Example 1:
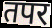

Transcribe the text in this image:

तपर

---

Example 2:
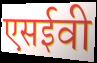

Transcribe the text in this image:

एसईवी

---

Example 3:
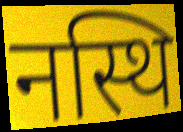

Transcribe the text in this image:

नस्थि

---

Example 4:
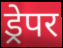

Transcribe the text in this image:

ड्रेपर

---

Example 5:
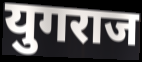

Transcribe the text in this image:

युगराज